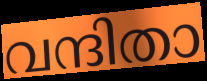
വന്ദിതാ